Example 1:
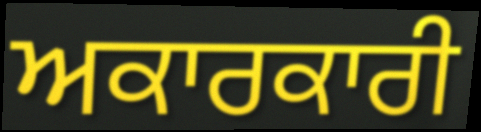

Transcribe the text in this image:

ਅਕਾਰਕਾਰੀ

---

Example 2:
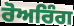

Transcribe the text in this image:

ਰੋਅਰਿੰਗ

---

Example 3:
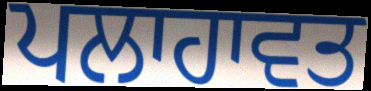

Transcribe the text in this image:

ਪਲਾਹਾਵਤ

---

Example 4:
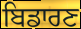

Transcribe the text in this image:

ਬਿਡਾਰਣ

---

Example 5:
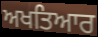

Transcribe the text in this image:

ਅਖਤਿਆਰ